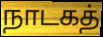
நாடகத்